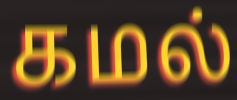
கமல்